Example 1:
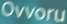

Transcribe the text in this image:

Ovvoru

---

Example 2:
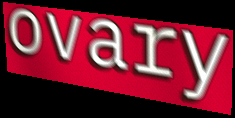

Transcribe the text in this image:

ovary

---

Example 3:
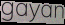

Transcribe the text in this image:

gayan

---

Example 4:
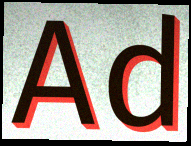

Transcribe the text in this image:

Ad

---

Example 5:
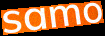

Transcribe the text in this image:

samo